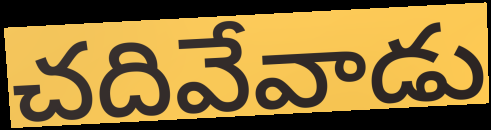
చదివేవాడు